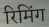
रिमिंग